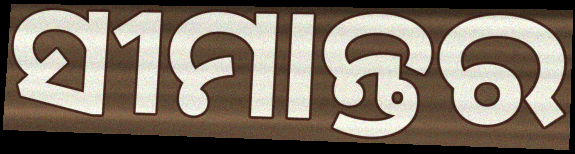
ସୀମାନ୍ତର